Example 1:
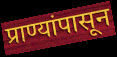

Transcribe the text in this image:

प्राण्यांपासून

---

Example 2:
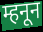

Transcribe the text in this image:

म्हनून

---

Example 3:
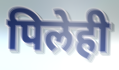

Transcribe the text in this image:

पिलेही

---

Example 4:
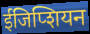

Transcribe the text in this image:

ईजिप्शियन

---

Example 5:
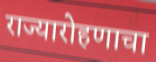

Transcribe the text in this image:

राज्यारोहणाचा